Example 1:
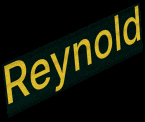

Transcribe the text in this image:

Reynold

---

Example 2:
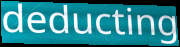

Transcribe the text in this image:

deducting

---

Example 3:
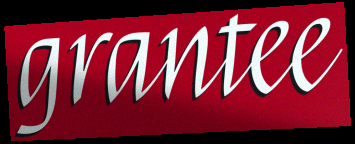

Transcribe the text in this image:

grantee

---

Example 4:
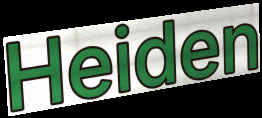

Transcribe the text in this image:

Heiden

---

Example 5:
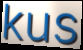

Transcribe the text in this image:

kus